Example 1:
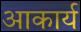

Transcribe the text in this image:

आकार्य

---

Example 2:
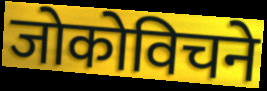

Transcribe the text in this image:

जोकोविचने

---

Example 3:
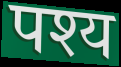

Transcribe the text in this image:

पश्य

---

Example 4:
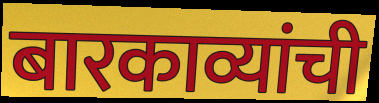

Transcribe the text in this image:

बारकाव्यांची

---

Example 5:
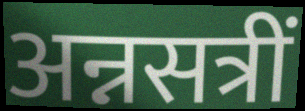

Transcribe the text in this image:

अन्नसत्रीं